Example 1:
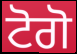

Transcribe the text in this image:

ਟੋਗੋ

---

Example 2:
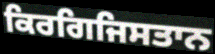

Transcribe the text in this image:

ਕਿਰਗਿਜਿਸਤਾਨ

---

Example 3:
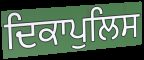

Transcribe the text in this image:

ਦਿਕਾਪੁਲਿਸ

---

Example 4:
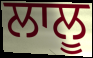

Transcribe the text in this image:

ਲਾਲੂ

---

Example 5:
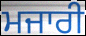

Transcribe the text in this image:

ਮਜਾਰੀ